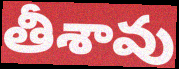
తీశావు